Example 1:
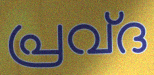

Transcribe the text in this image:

പ്രവ്ദ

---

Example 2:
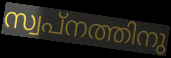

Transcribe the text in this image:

സ്വപ്നത്തിനു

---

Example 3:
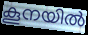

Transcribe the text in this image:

കൂനയിൽ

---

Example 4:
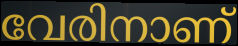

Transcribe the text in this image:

വേരിനാണ്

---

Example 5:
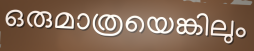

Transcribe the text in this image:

ഒരുമാത്രയെങ്കിലും